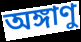
অঙ্গাণু